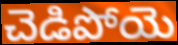
చెడిపోయె